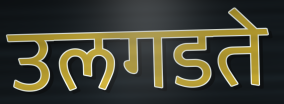
उलगडते